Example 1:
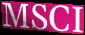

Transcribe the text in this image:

MSCI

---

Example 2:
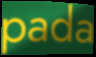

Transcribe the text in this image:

pada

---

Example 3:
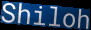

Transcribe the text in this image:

Shiloh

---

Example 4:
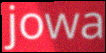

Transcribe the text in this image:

jowa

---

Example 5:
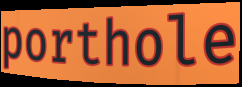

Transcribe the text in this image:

porthole